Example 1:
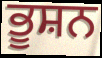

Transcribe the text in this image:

ਭੂਸ਼ਨ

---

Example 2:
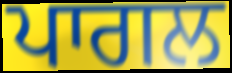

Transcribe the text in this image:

ਪਾਗਲ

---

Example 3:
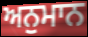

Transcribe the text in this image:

ਅਨੁਮਾਨ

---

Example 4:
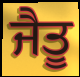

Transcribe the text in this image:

ਜੈਤੂ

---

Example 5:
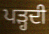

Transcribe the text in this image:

ਪੜ੍ਹਦੀ